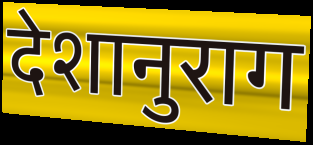
देशानुराग